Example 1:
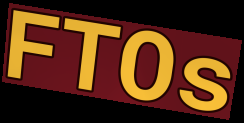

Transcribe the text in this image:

FTOs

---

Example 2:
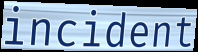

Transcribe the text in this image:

incident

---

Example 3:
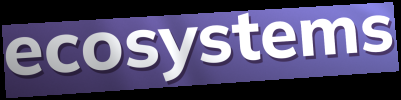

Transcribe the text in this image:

ecosystems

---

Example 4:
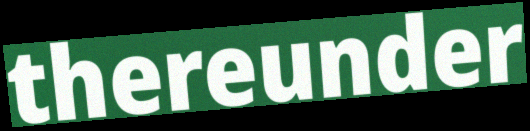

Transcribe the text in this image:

thereunder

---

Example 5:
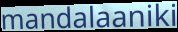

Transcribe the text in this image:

mandalaaniki